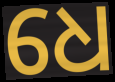
ଧେ